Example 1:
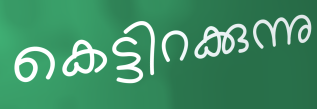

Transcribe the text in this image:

കെട്ടിറക്കുന്നു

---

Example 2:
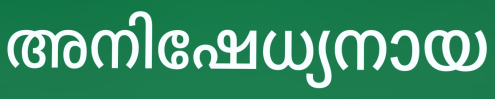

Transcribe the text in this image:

അനിഷേധ്യനായ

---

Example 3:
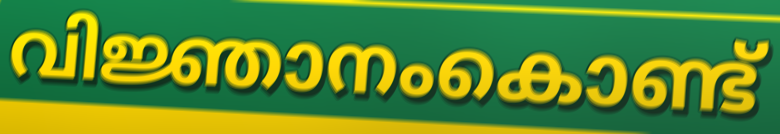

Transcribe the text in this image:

വിജ്ഞാനംകൊണ്ട്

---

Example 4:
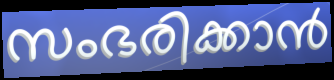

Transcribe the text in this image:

സംഭരിക്കാൻ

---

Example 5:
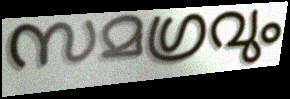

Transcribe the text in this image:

സമഗ്രവും